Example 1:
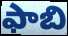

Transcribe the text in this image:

ఫాబి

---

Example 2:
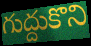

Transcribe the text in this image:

గుద్దుకొని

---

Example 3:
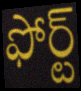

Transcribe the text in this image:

ఫోర్ట్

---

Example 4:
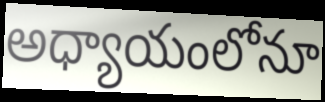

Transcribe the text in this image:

అధ్యాయంలోనూ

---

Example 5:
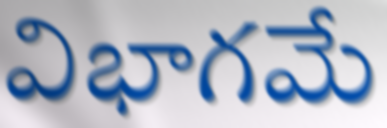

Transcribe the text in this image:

విభాగమే